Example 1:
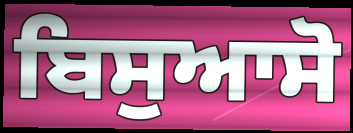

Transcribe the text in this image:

ਬਿਸੁਆਸੋ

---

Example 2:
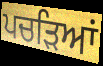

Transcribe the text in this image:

ਪਚੜਿਆਂ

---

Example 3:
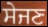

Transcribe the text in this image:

ਸੇਜਣ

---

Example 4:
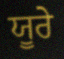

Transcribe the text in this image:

ਯੂਰੇ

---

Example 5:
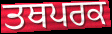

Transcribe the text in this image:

ਤਥਪਰਕ